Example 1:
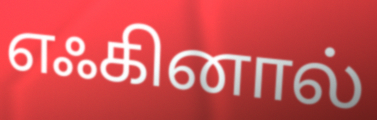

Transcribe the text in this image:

எஃகினால்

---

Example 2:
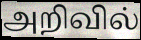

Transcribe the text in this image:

அறிவில்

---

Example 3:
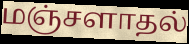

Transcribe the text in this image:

மஞ்சளாதல்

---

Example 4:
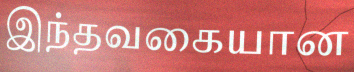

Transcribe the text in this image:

இந்தவகையான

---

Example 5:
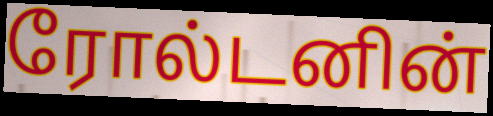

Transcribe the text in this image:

ரோல்டனின்